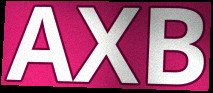
AXB